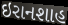
ઇરાનશાહ